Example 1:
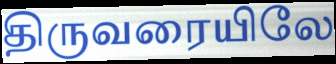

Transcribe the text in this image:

திருவரையிலே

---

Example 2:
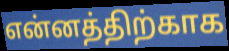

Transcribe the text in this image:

என்னத்திற்காக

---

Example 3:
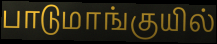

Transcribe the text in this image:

பாடுமாங்குயில்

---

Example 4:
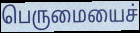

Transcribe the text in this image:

பெருமையைச்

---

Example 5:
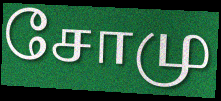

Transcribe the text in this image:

சோமு